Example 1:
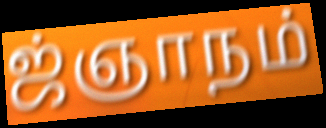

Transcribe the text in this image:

ஜ்ஞாநம்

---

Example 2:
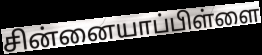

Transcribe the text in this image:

சின்னையாப்பிள்ளை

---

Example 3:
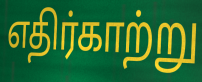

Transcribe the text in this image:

எதிர்காற்று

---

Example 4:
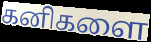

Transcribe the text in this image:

கனிகளை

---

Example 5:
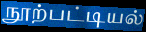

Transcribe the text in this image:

நூற்பட்டியல்